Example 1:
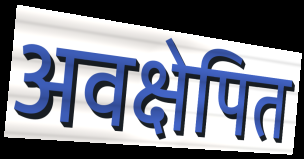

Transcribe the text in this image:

अवक्षेपित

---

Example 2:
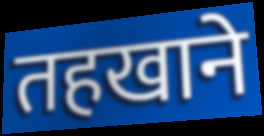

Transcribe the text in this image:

तहखाने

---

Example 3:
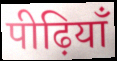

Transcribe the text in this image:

पीढ़ियाँ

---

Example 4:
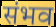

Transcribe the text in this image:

संभव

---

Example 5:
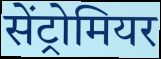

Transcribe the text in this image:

सेंट्रोमियर